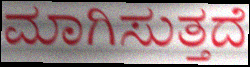
ಮಾಗಿಸುತ್ತದೆ